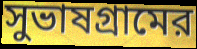
সুভাষগ্রামের